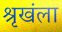
श्रृखंला